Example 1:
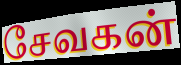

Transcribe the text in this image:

சேவகன்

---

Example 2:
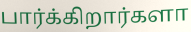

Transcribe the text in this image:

பார்க்கிறார்களா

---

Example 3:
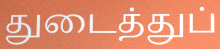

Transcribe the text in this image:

துடைத்துப்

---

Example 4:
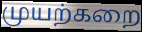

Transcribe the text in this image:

முயற்கறை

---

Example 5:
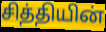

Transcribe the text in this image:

சித்தியின்